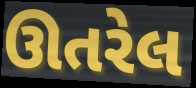
ઊતરેલ